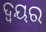
ଦ୍ବୟର